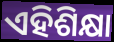
ଏହିଶିକ୍ଷା